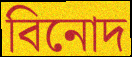
বিনোদ